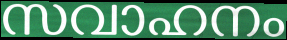
സവാഹനം